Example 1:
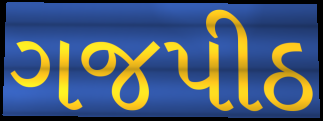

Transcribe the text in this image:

ગજપીઠ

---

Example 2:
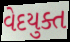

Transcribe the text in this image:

વેદયુક્ત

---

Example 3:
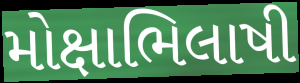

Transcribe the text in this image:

મોક્ષાભિલાષી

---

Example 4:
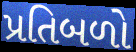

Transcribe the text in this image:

પ્રતિબળો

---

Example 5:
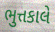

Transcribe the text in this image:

ભુત્તકાલે